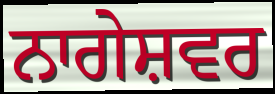
ਨਾਗੇਸ਼ਵਰ